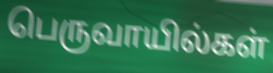
பெருவாயில்கள்